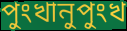
পুংখানুপুংখ